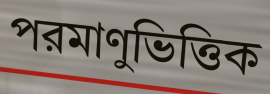
পরমাণুভিত্তিক